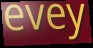
evey